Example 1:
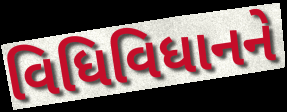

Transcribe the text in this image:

વિધિવિધાનને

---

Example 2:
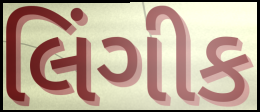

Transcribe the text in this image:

લિંગીક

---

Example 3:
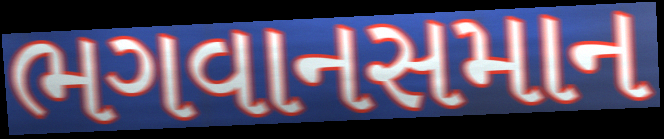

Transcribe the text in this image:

ભગવાનસમાન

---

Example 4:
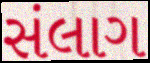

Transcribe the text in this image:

સંલાગ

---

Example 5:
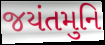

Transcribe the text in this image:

જયંતમુનિ